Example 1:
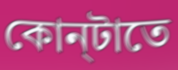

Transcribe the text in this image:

কোন্‌টাতে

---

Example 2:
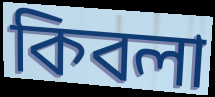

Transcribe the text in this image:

কিবলা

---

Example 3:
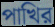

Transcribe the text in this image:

পাখির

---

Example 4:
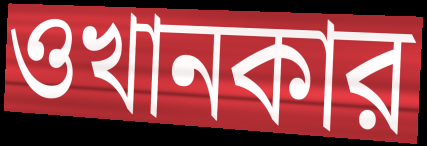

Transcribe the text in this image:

ওখানকার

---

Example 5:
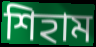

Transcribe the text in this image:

শিহাম